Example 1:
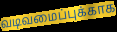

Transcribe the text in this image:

வடிவமைப்புக்காக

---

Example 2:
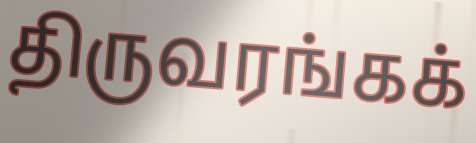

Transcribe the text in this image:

திருவரங்கக்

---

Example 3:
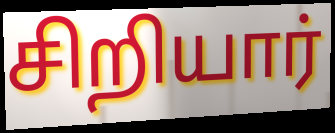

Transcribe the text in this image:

சிறியார்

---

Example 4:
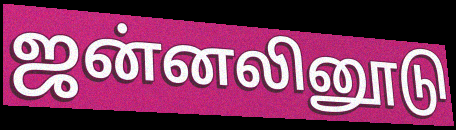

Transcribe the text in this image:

ஜன்னலினூடு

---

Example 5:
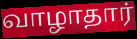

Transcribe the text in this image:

வாழாதார்